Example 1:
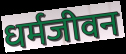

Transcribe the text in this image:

धर्मजीवन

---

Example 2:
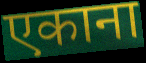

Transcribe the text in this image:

एकाना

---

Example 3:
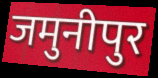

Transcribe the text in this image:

जमुनीपुर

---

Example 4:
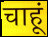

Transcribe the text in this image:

चाहूं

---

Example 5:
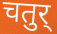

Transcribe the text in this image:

चतुर्